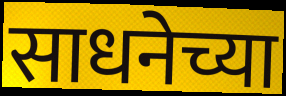
साधनेच्या